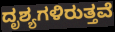
ದೃಶ್ಯಗಳಿರುತ್ತವೆ